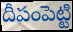
దీపంపెట్టి